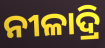
ନୀଳାଦ୍ରି